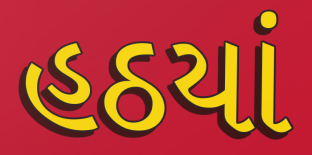
હઠયાં